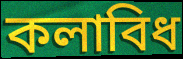
কলাবিধ